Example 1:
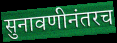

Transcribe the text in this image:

सुनावणीनंतरच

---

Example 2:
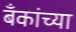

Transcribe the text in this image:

बॅंकांच्या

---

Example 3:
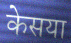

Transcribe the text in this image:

केसया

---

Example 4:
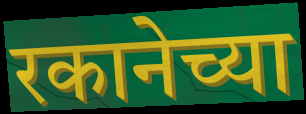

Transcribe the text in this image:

रकानेच्या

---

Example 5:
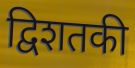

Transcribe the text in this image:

द्विशतकी